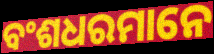
ବଂଶଧରମାନେ